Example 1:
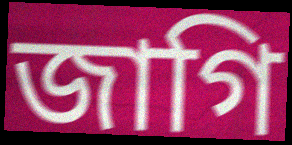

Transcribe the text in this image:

জাগি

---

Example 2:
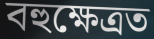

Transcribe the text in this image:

বহুক্ষেত্ৰত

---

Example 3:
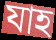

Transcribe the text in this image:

যাহ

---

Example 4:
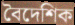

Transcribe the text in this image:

বৈদেশিক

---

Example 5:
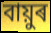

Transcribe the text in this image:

বায়ুৰ